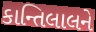
કાન્તિલાલને